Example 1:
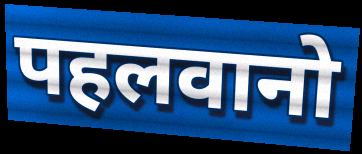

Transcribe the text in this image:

पहलवानो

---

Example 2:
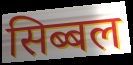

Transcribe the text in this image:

सिब्बल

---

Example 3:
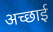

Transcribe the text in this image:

अच्छाई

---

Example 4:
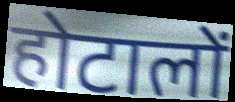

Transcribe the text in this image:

होटालों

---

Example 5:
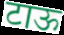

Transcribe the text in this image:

टाऊ